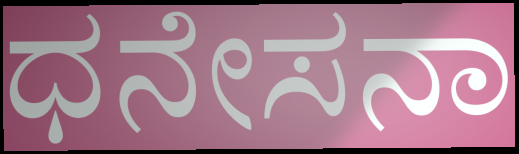
ಧನೇಸನಾ